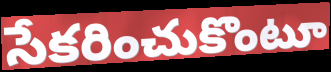
సేకరించుకొంటూ